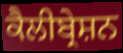
ਕੈਲੀਬ੍ਰੇਸ਼ਨ